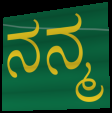
ನನ್ಮ